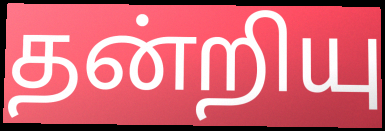
தன்றியு